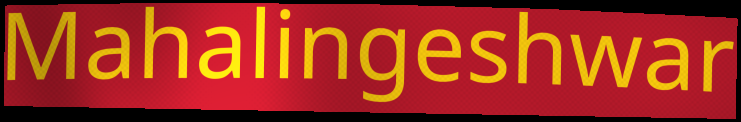
Mahalingeshwar